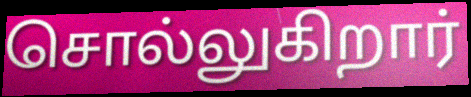
சொல்லுகிறார்